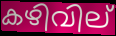
കഴിവില്